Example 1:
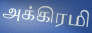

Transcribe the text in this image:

அக்கிரமி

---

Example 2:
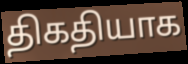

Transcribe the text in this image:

திகதியாக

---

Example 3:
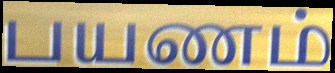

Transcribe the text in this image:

பயணம்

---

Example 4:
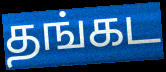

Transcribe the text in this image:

தங்கட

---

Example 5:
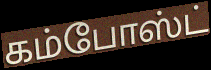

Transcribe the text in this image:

கம்போஸ்ட்